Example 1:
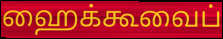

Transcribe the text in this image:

ஹைக்கூவைப்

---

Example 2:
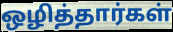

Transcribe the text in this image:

ஒழித்தார்கள்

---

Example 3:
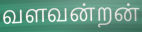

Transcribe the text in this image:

வளவன்றன்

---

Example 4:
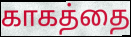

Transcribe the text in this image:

காகத்தை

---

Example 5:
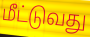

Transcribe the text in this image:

மீட்டுவது